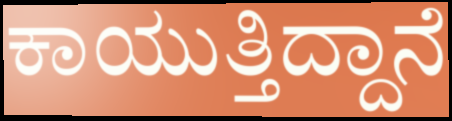
ಕಾಯುತ್ತಿದ್ದಾನೆ